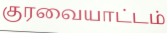
குரவையாட்டம்